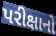
પરીક્ષાનો